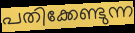
പതിക്കേണ്ടുന്ന